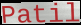
Patil